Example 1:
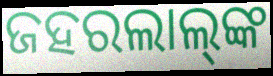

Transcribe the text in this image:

ଜହରଲାଲ୍‌ଙ୍କ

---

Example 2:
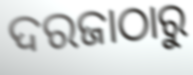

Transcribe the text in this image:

ଦରଜାଠାରୁ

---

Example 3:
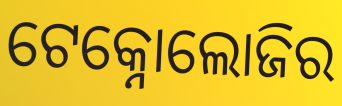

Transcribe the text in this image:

ଟେକ୍ନୋଲୋଜିର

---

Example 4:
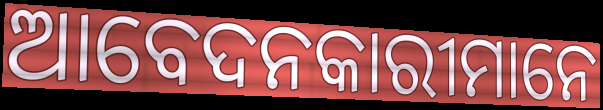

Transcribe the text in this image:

ଆବେଦନକାରୀମାନେ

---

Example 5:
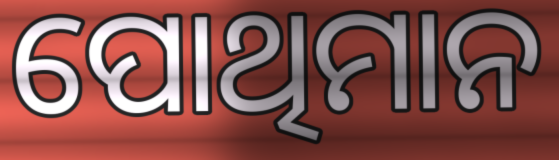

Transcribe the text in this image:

ପୋଥିମାନ